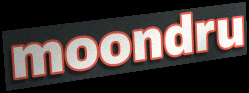
moondru